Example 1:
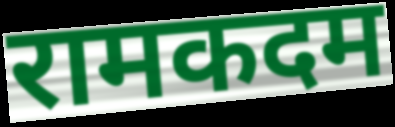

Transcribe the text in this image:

रामकदम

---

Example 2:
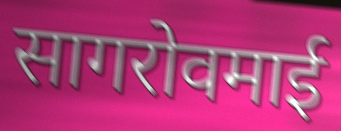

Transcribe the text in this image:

सागरोवमाई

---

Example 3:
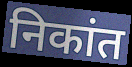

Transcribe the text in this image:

निकांत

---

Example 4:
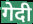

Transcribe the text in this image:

गेदी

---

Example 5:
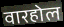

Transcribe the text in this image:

वारहोल